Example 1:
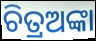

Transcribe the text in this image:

ଚିତ୍ରଅଙ୍କା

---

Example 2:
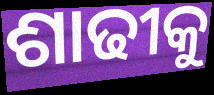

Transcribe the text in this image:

ଶାଢୀକୁ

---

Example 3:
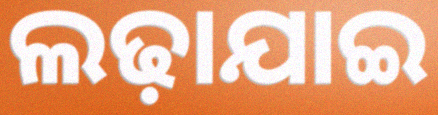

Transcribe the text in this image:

ଲଢ଼ାଯାଇ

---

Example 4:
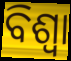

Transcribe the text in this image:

ବିଶ୍ବା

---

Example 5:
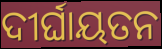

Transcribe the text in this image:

ଦୀର୍ଘାୟତନ